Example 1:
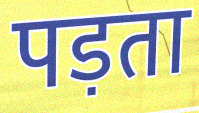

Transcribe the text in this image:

पड़ता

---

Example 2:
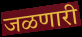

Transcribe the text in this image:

जळणारी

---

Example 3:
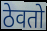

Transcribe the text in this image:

ठेवतो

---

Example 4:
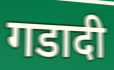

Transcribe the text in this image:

गडादी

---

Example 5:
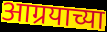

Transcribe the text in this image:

आग्रयाच्या